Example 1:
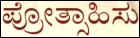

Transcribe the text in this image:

ಪ್ರೋತ್ಸಾಹಿಸು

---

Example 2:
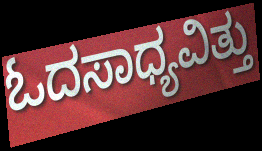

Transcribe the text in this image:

ಓದಸಾಧ್ಯವಿತ್ತು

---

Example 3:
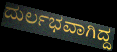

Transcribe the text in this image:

ದುರ್ಲಭವಾಗಿದ್ದ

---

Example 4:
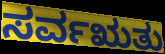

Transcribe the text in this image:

ಸರ್ವಋತು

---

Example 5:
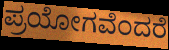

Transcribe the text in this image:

ಪ್ರಯೋಗವೆಂದರೆ